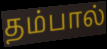
தம்பால்